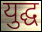
युद्घ